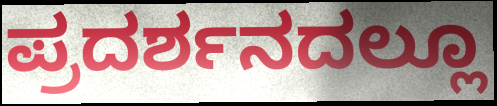
ಪ್ರದರ್ಶನದಲ್ಲೂ